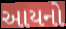
આયનો